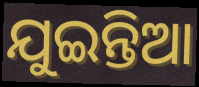
ଯୁଇନ୍ତିଆ